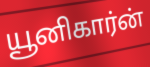
யூனிகார்ன்